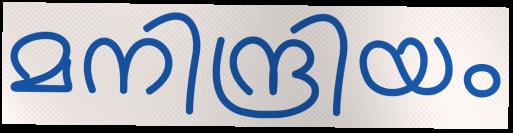
മനിന്ദ്രിയം